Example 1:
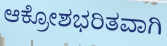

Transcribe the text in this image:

ಆಕ್ರೋಶಭರಿತವಾಗಿ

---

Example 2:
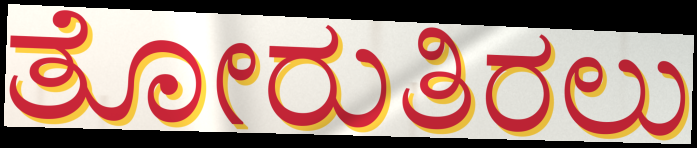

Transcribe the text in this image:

ತೋರುತಿರಲು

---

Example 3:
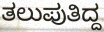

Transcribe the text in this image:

ತಲುಪುತಿದ್ದ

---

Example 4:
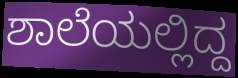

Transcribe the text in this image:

ಶಾಲೆಯಲ್ಲಿದ್ದ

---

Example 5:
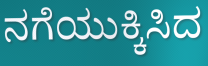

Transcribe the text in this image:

ನಗೆಯುಕ್ಕಿಸಿದ